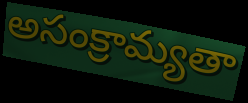
అసంక్రామ్యతా